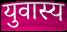
युवास्य